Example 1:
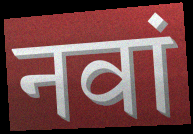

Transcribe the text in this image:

नवां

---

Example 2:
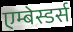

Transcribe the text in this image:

एम्बेस्डर्स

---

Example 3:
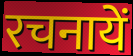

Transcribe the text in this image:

रचनायें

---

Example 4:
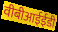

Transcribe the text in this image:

वीबीआईईडी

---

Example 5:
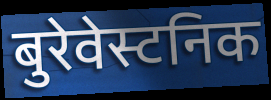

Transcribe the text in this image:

बुरेवेस्टनिक